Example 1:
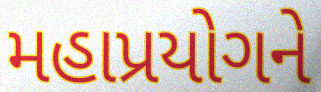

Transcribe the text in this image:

મહાપ્રયોગને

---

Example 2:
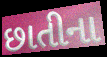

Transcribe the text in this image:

છાતીના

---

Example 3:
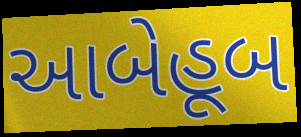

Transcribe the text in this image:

આબેહૂબ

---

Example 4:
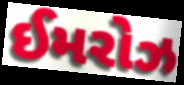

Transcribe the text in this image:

ઈમરોઝ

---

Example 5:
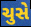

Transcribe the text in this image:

ચુસે